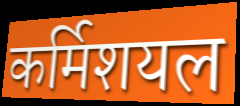
कर्मिशयल